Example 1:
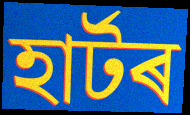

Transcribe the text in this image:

হাৰ্টৰ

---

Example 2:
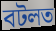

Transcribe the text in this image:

বটলত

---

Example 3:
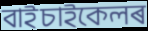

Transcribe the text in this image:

বাইচাইকেলৰ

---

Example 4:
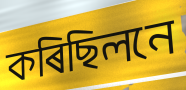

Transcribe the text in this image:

কৰিছিলনে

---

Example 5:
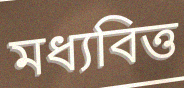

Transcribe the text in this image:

মধ্যবিত্ত